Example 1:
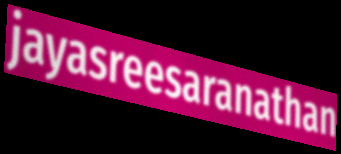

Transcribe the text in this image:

jayasreesaranathan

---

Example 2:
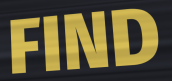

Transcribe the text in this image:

FIND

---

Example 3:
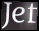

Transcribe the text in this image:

Jet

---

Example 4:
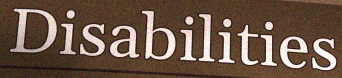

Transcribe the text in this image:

Disabilities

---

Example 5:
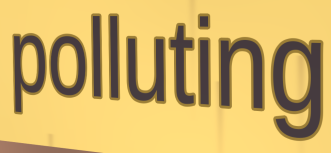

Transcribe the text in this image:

polluting